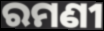
ରମଣୀ